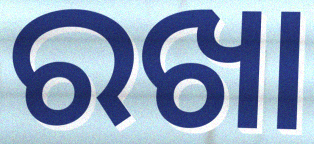
ରଖା